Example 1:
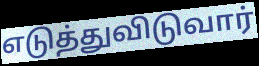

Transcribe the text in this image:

எடுத்துவிடுவார்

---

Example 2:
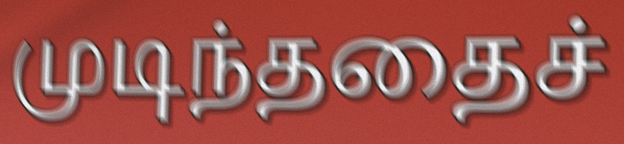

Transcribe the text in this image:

முடிந்ததைச்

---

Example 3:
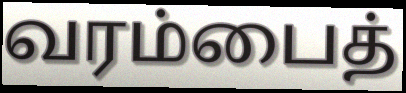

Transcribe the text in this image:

வரம்பைத்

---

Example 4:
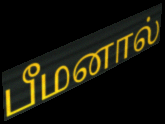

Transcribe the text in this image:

பீமனால்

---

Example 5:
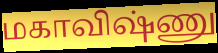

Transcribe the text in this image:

மகாவிஷ்ணு